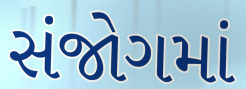
સંજોગમાં